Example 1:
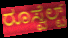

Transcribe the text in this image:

ರೂಸ್ವೆಲ್ಟ್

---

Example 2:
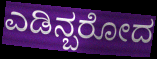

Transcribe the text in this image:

ಎಡಿನ್ಬರೋದ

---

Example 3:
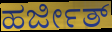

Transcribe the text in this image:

ಹರ್ಜೀತ್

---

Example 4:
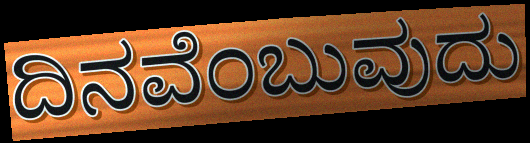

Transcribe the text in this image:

ದಿನವೆಂಬುವುದು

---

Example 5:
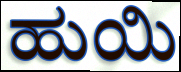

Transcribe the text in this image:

ಹುಯಿ